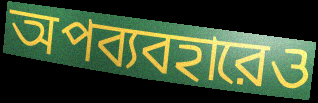
অপব্যবহারেও